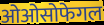
ओओसोफेगल